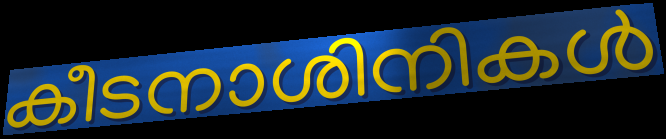
കീടനാശിനികൾ